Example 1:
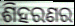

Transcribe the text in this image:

ଶିହରଣର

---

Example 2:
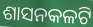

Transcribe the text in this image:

ଶାସନକଳଟି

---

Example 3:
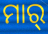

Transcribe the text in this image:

ମାର୍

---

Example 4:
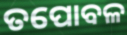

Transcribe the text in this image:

ତପୋବଳ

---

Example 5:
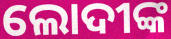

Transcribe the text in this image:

ଲୋଦୀଙ୍କ